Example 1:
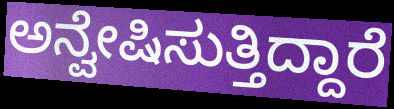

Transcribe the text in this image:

ಅನ್ವೇಷಿಸುತ್ತಿದ್ದಾರೆ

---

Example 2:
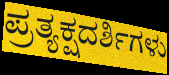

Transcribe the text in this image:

ಪ್ರತ್ಯಕ್ಷದರ್ಶಿಗಳು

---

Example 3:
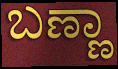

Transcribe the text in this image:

ಬಣ್ಣಾ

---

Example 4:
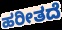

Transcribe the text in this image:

ಹರೀತದೆ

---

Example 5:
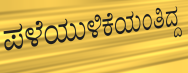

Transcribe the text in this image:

ಪಳೆಯುಳಿಕೆಯಂತಿದ್ದ